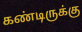
கண்டிருக்கு